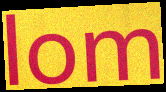
lom